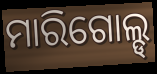
ମାରିଗୋଲ୍ଡ୍